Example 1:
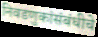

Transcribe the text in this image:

निवडणुकांसंबंधीचे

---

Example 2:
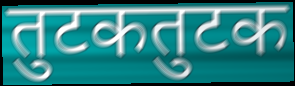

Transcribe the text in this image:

तुटकतुटक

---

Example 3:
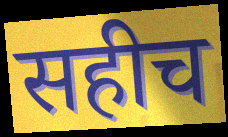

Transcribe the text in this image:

सहीच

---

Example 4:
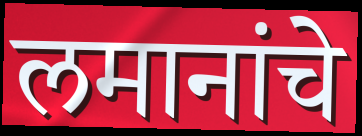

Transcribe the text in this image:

लमानांचे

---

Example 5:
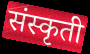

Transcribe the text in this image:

संस्कृती